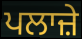
ਪਲਾਜ਼ੇ